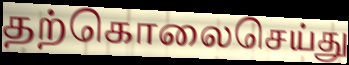
தற்கொலைசெய்து